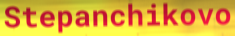
Stepanchikovo